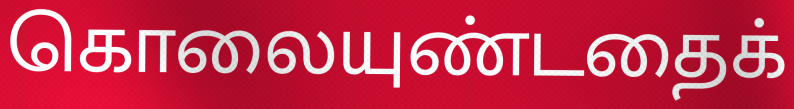
கொலையுண்டதைக்